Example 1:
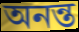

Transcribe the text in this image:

অনন্ত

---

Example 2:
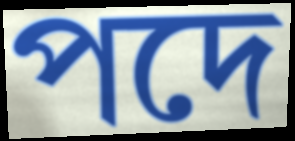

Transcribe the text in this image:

পদে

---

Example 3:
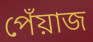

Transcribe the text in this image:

পেঁয়াজ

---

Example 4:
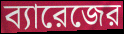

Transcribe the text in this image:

ব্যারেজের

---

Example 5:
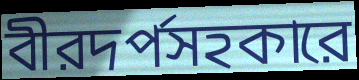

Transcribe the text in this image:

বীরদর্পসহকারে